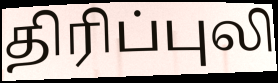
திரிப்புலி